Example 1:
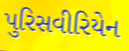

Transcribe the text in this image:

પુરિસવીરિયેન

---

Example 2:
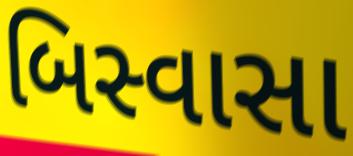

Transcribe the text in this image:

બિસ્વાસા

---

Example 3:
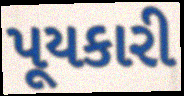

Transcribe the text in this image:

પૂયકારી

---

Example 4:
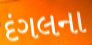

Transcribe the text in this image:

દંગલના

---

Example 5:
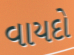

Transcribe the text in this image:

વાયદો